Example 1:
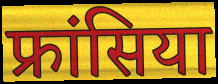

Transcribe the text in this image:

फ्रांसिया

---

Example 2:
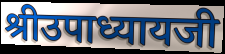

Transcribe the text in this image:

श्रीउपाध्यायजी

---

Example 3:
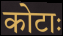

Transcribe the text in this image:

कोटाः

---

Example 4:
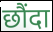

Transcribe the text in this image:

छौंदा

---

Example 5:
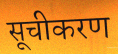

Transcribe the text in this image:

सूचीकरण